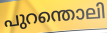
പുറന്തൊലി